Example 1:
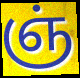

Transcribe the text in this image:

ஞ்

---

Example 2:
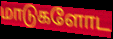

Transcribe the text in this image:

மாடுகளோட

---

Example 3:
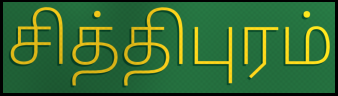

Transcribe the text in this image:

சித்திபுரம்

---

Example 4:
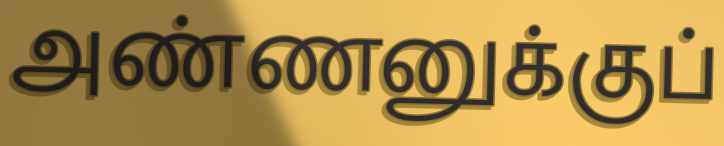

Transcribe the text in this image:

அண்ணனுக்குப்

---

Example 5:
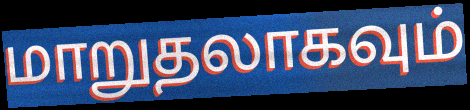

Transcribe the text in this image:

மாறுதலாகவும்